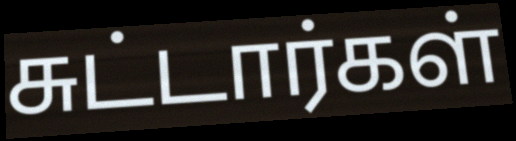
சுட்டார்கள்